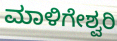
ಮಾಳಿಗೇಶ್ವರಿ